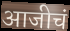
आजीचं